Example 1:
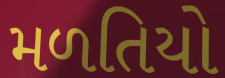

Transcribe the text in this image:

મળતિયો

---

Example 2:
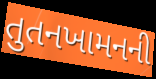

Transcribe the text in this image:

તુતનખામનની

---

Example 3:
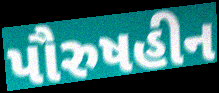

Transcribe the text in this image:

પૌરુષહીન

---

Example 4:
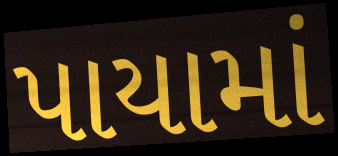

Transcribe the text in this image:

પાયામાં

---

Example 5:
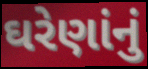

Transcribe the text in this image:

ઘરેણાંનું